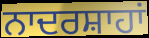
ਨਾਦਰਸ਼ਾਹਾਂ